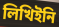
লিখিইনি